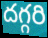
దగ్గరి